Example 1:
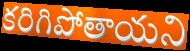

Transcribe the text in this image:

కరిగిపోతాయని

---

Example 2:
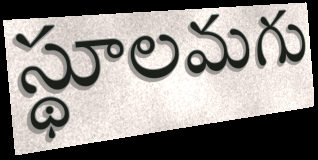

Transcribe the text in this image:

స్థూలమగు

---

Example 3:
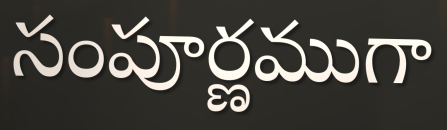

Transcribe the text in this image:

సంపూర్ణముగా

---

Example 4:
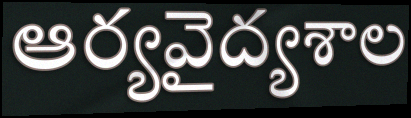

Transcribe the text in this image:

ఆర్యవైద్యశాల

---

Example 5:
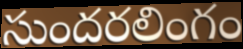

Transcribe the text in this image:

సుందరలింగం